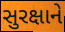
સુરક્ષાને